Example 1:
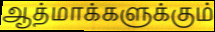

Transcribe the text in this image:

ஆத்மாக்களுக்கும்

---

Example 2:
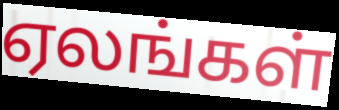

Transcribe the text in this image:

ஏலங்கள்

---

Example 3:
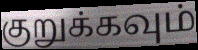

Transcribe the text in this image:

குறுக்கவும்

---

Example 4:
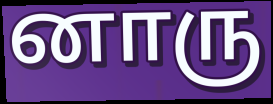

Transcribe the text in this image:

னாரு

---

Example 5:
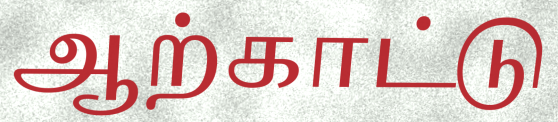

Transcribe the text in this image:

ஆற்காட்டு